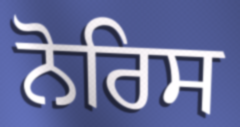
ਨੋਰਿਸ